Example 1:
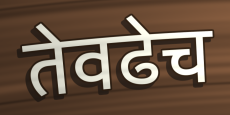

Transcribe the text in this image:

तेवढेच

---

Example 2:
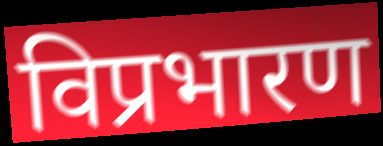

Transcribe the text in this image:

विप्रभारण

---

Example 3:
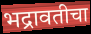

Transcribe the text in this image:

भद्रावतीचा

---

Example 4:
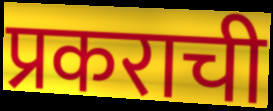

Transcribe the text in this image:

प्रकराची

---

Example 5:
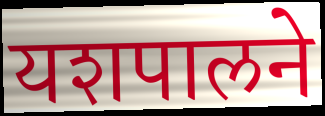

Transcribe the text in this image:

यशपालने